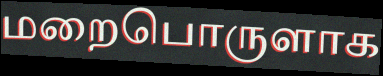
மறைபொருளாக